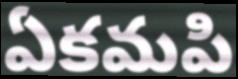
ఏకమపి